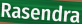
Rasendra